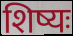
शिष्यः